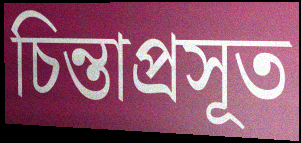
চিন্তাপ্রসূত